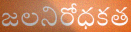
జలనిరోధకత